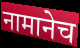
नामानेच